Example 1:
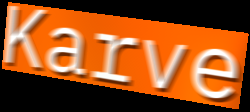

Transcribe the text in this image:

Karve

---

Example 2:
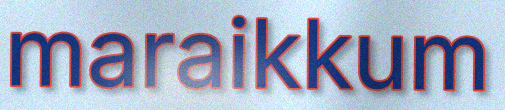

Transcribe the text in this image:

maraikkum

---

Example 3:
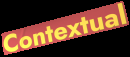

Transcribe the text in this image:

Contextual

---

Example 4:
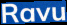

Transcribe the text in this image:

Ravu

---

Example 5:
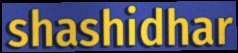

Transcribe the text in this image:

shashidhar